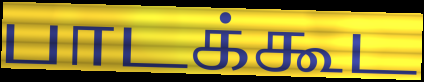
பாடக்கூட